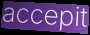
accepit